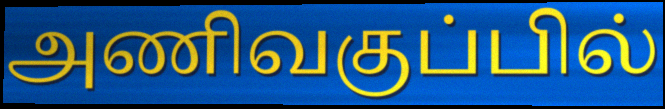
அணிவகுப்பில்